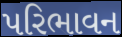
પરિભાવન